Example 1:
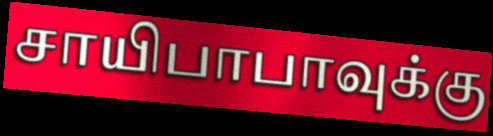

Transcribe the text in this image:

சாயிபாபாவுக்கு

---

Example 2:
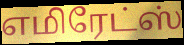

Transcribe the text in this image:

எமிரேட்ஸ்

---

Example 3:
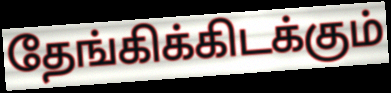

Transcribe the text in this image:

தேங்கிக்கிடக்கும்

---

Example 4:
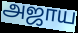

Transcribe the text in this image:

அஜாய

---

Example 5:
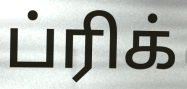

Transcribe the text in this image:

ப்ரிக்